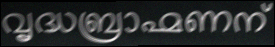
വൃദ്ധബ്രാഹ്മണന്